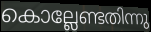
കൊല്ലേണ്ടതിന്നു